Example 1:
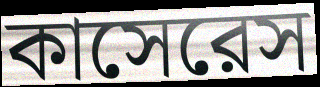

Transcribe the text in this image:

কাসেরেস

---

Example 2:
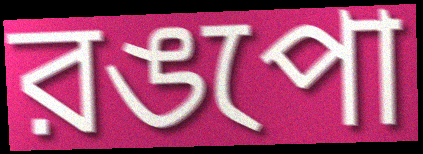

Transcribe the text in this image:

রঙপো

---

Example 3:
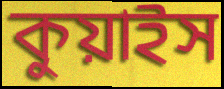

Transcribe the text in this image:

কুয়াইস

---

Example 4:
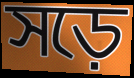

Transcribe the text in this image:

সড়ে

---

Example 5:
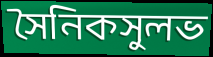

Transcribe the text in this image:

সৈনিকসুলভ